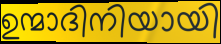
ഉന്മാദിനിയായി